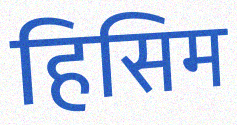
हिसिम